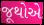
જૂથોએ